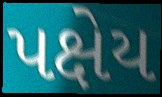
પક્ષેય